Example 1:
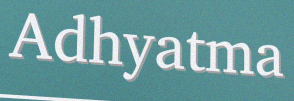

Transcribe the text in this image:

Adhyatma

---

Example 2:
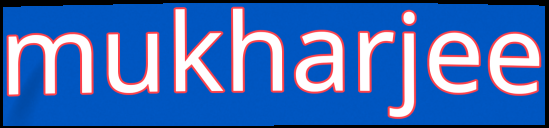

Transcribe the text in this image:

mukharjee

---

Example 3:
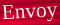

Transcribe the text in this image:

Envoy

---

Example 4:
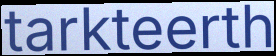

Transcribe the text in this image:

tarkteerth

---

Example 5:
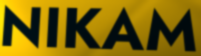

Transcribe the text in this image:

NIKAM